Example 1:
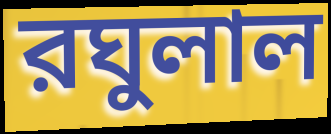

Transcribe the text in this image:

রঘুলাল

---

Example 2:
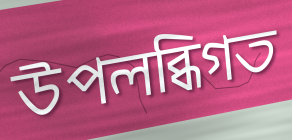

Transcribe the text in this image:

উপলব্ধিগত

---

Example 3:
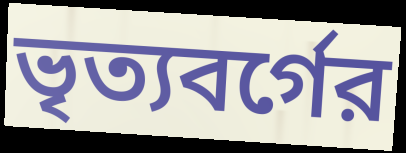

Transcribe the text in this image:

ভৃত্যবর্গের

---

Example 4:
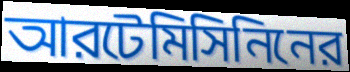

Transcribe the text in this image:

আরটেমিসিনিনের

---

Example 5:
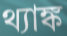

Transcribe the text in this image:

থ্যাঙ্ক